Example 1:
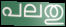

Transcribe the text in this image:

പലതു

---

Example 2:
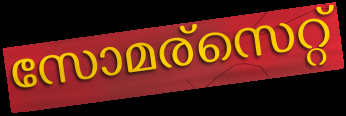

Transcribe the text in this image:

സോമര്സെറ്റ്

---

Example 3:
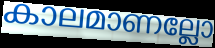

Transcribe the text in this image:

കാലമാണല്ലോ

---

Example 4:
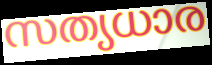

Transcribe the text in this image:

സത്യധാര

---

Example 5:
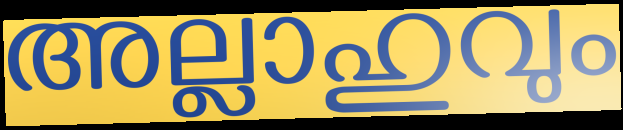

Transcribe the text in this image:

അല്ലാഹുവും